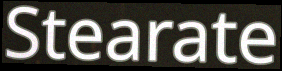
Stearate